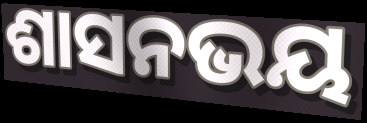
ଶାସନଭୟ